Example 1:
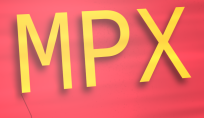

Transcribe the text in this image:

MPX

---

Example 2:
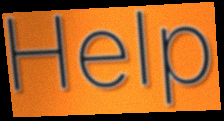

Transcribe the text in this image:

Help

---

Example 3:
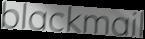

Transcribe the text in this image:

blackmail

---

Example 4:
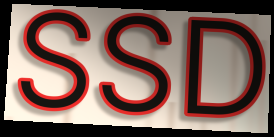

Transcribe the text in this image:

SSD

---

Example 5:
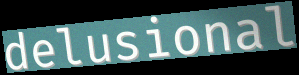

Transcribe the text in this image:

delusional